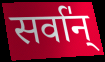
सर्वा॑न्